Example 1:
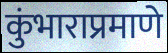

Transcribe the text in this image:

कुंभाराप्रमाणे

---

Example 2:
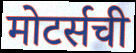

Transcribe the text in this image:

मोटर्सची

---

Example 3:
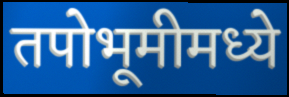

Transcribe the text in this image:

तपोभूमीमध्ये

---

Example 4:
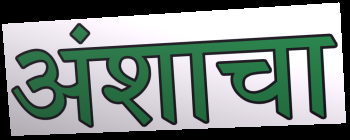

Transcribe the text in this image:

अंशाचा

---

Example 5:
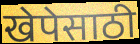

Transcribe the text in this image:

खेपेसाठी